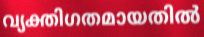
വ്യക്തിഗതമായതിൽ